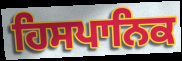
ਹਿਸਪਾਨਿਕ